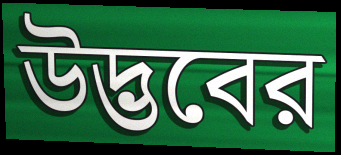
উদ্ভবের